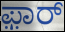
ಫ಼ಾರ್